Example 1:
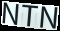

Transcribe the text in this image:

NTN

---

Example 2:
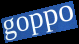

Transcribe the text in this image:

goppo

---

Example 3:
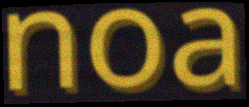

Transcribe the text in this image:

noa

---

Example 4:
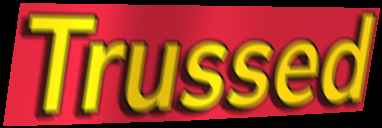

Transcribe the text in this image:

Trussed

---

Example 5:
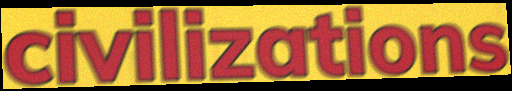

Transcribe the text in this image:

civilizations